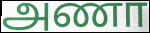
அணா